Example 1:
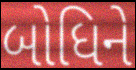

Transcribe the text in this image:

બોધિને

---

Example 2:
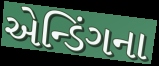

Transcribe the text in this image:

એન્ડિંગના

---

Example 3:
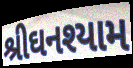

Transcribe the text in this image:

શ્રીઘનશ્યામ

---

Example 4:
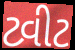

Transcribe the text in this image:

ટ્વીટ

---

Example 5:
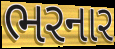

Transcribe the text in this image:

ભરનાર